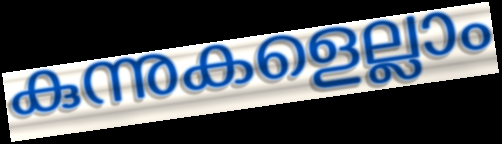
കുന്നുകളെല്ലാം